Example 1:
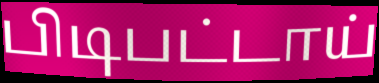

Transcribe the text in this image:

பிடிபட்டாய்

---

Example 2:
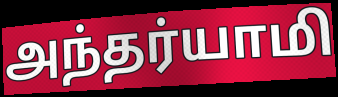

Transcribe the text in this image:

அந்தர்யாமி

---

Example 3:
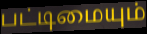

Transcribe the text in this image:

பட்டிமையும்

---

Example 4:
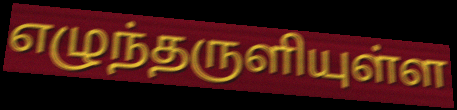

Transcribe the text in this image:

எழுந்தருளியுள்ள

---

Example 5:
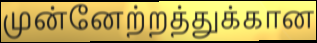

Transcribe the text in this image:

முன்னேற்றத்துக்கான